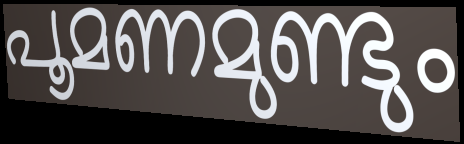
പൂമണമുണ്ടും